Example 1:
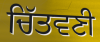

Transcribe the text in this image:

ਚਿੱਤਵਣੀ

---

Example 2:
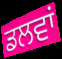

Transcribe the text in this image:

ਡਲਵਾਂ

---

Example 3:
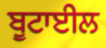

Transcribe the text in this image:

ਬੂਟਾਈਲ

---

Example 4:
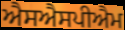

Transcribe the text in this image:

ਐਸਐਸਪੀਐਮ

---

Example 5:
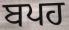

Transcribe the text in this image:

ਬਪਹ